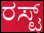
ರಸ್ಟ್